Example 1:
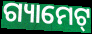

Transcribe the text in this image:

ଗ୍ୟାମେଟ୍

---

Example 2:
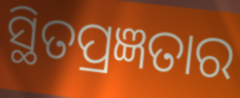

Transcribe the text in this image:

ସ୍ଥିତପ୍ରଜ୍ଞତାର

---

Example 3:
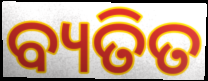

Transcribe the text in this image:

ବ୍ୟତିତ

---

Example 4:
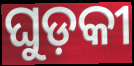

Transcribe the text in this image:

ଘୁଡ଼କୀ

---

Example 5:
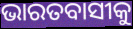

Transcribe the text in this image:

ଭାରତବାସୀକୁ